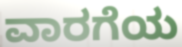
ವಾರಗೆಯ